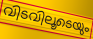
വിടവിലൂടെയും